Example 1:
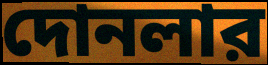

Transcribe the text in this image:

দোনলার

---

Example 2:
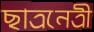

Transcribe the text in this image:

ছাত্রনেত্রী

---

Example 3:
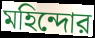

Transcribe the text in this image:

মহিন্দোর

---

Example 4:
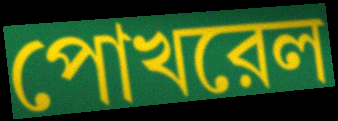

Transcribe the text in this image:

পোখরেল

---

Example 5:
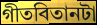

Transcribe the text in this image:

গীতবিতানটা